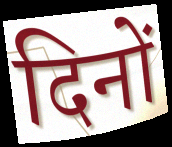
दिनों